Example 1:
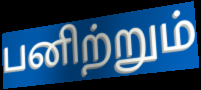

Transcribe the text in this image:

பனிற்றும்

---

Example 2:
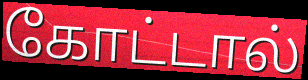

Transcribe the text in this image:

கோட்டால்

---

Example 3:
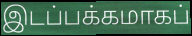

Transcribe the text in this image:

இடப்பக்கமாகப்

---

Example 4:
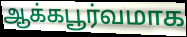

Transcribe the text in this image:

ஆக்கபூர்வமாக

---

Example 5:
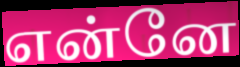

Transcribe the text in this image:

என்னே